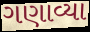
ગણાવ્યા